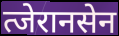
त्जेरानसेन